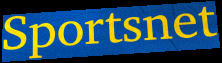
Sportsnet